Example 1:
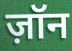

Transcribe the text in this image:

ज़ॉन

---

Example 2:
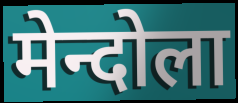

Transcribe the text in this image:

मेन्दोला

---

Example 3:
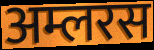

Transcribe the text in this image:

अम्लरस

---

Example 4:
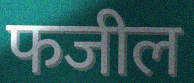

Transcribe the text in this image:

फजील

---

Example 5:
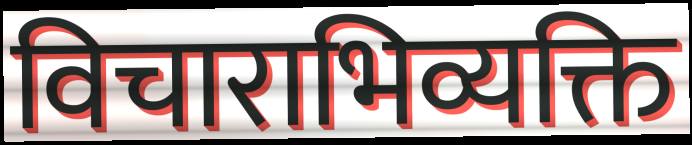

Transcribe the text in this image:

विचाराभिव्यक्ति